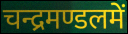
चन्द्रमण्डलमें